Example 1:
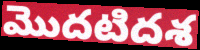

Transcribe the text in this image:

మొదటిదశ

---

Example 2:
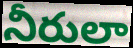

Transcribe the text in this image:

నీరులా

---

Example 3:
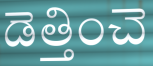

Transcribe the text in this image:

డెత్తించె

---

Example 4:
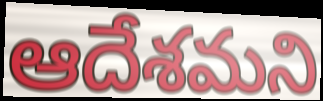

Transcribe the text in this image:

ఆదేశమని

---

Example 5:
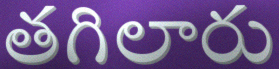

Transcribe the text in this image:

తగిలారు